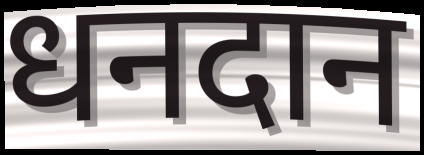
धनदान